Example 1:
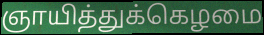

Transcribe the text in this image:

ஞாயித்துக்கெழமை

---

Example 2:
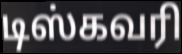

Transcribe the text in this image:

டிஸ்கவரி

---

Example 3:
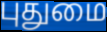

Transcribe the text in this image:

புதுமை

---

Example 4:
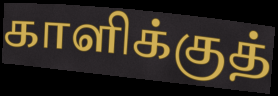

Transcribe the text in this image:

காளிக்குத்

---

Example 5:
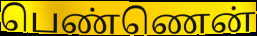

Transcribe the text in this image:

பெண்ணென்